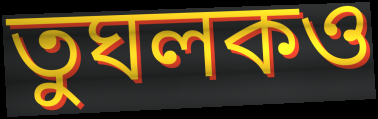
তুঘলকও